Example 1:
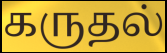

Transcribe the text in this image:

கருதல்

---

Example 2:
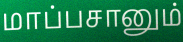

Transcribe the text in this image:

மாப்பசானும்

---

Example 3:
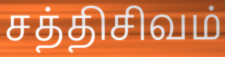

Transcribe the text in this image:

சத்திசிவம்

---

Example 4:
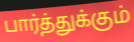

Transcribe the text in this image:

பார்த்துக்கும்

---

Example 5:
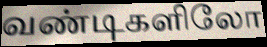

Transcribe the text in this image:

வண்டிகளிலோ